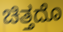
ಚಿತ್ತದೊ